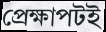
প্রেক্ষাপটই